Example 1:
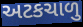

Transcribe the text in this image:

અટકચાળુ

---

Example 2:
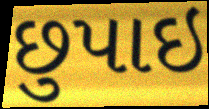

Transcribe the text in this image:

છુપાઇ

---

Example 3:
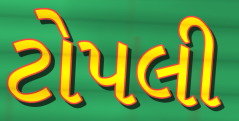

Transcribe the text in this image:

ટોપલી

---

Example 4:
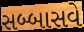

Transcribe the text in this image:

સબ્બાસવે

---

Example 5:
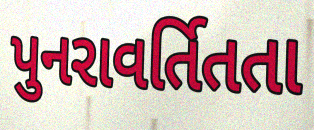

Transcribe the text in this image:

પુનરાવર્તિતતા